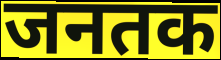
जनतक